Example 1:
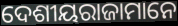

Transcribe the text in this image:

ଦେଶୀୟରାଜାମାନେ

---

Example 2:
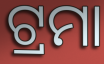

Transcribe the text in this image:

ଟ୍ରମା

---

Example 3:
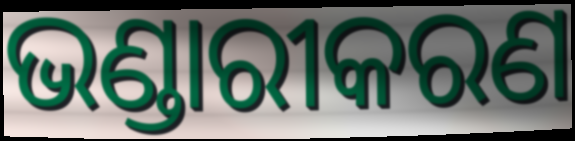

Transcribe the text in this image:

ଭଣ୍ଡାରୀକରଣ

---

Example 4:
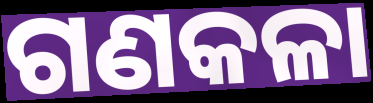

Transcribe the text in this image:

ଗଣକଳା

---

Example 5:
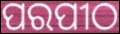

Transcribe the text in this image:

ପରପୀଠ